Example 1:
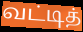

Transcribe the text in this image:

வட்டித்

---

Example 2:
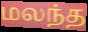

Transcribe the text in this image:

மலந்த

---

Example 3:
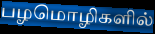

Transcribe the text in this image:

பழமொழிகளில்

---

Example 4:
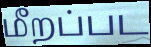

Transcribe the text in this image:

மீறப்பட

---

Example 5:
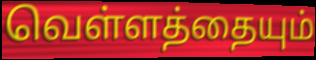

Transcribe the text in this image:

வெள்ளத்தையும்